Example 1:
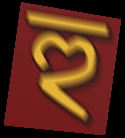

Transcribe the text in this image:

হু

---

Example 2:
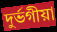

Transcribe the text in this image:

দুৰ্ভগীয়া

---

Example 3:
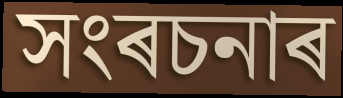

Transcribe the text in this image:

সংৰচনাৰ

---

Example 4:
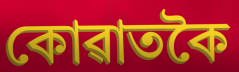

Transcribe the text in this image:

কোৱাতকৈ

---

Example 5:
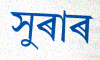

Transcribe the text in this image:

সুৰাৰ